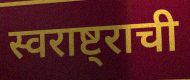
स्वराष्ट्राची